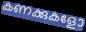
കണക്കുകളോ